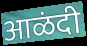
आळंदी